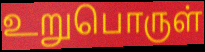
உறுபொருள்